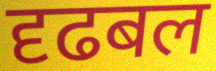
दृढबल